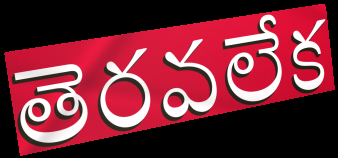
తెరవలేక